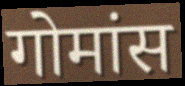
गोमांस